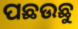
ପଛଉଛୁ